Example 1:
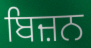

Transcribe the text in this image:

ਬਿਜ਼ਨ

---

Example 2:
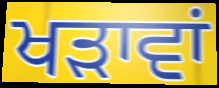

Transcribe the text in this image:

ਖੜਾਵਾਂ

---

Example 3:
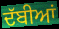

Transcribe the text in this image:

ਦੱਬੀਆਂ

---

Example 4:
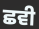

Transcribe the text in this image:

ਛਵੀ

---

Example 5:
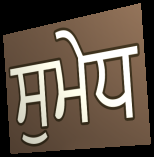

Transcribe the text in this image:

ਸੁਮੇਧ